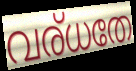
വര്ധതേ